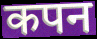
कपन